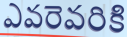
ఎవరెవరికి